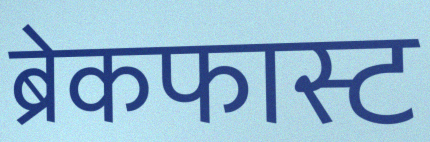
ब्रेकफास्ट